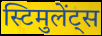
स्टिमुलेंट्स